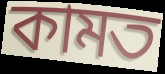
কামত